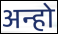
अन्हो